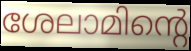
ശേലാമിന്റെ